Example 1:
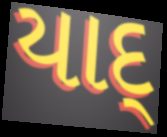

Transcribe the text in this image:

યાદ્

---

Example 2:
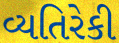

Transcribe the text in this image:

વ્યતિરેકી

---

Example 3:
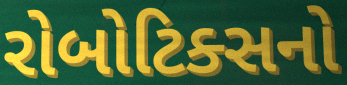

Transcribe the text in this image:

રોબોટિક્સનો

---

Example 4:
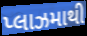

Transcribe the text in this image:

પ્લાઝમાથી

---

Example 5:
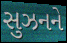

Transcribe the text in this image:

સુઝનને